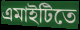
এমাইটিতে